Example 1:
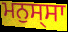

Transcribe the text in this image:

ਮਨੁਸ੍ਸਾ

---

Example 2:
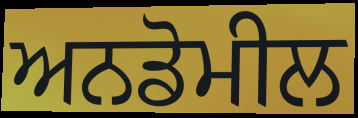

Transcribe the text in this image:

ਅਨਡੋਮੀਲ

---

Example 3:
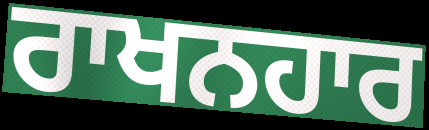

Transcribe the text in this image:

ਰਾਖਨਹਾਰ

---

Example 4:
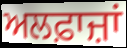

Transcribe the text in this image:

ਅਲਫ਼ਾਜ਼ਾਂ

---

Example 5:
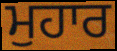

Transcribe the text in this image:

ਮੁਹਾਰ